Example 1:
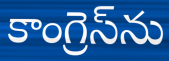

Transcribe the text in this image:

కాంగ్రెస్‌ను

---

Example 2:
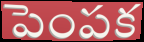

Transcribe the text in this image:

పెంపక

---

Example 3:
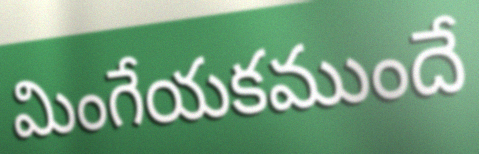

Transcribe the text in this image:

మింగేయకముందే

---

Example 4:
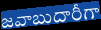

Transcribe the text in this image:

జవాబుదారీగా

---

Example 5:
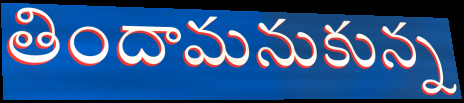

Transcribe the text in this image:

తిందామనుకున్న